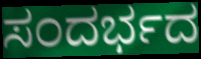
ಸಂದರ್ಭದ